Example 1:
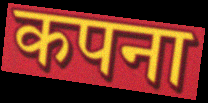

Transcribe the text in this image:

कपना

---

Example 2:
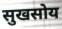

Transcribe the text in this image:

सुखसोय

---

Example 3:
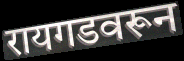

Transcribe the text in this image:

रायगडवरून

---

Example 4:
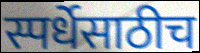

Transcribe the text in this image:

स्पर्धेसाठीच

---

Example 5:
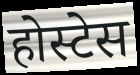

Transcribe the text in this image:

होस्टेस